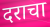
दराचा